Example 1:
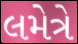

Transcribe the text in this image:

લમેત્રે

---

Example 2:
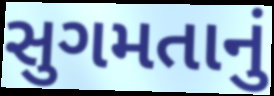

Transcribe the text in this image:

સુગમતાનું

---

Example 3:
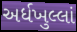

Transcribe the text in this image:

અર્ધખુલ્લાં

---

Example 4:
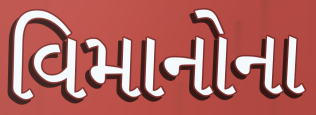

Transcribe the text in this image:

વિમાનોના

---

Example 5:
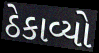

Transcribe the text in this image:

ઠેકાવ્યો